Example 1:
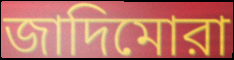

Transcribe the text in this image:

জাদিমোরা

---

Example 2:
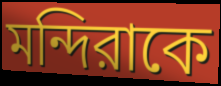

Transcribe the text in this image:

মন্দিরাকে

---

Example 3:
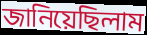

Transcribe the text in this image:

জানিয়েছিলাম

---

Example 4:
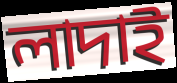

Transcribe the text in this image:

লাদাই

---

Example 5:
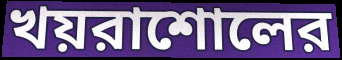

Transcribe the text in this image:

খয়রাশোলের